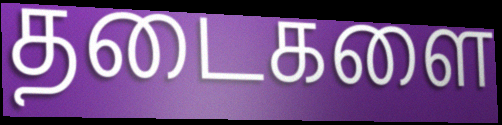
தடைகளை